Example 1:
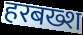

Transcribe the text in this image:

हरबख्श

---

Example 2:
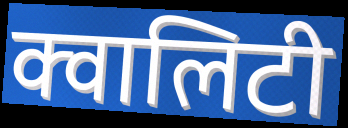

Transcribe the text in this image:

क्‍वालिटी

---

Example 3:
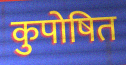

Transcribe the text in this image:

कुपोषित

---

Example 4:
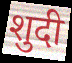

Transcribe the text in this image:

शुदी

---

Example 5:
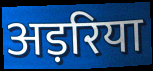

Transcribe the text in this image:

अड़रिया